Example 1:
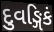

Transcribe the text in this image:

દુવઙ્ગિકં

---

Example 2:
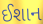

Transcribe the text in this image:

ઈશાન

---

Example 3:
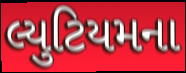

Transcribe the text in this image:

લ્યુટિયમના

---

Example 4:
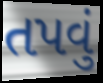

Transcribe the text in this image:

તપવું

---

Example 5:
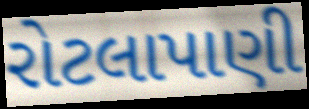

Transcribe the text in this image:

રોટલાપાણી